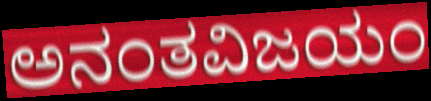
ಅನಂತವಿಜಯಂ